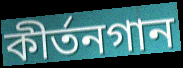
কীর্তনগান